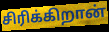
சிரிக்கிறான்